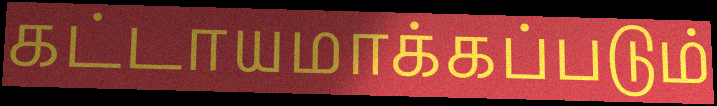
கட்டாயமாக்கப்படும்